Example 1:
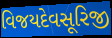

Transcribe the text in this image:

વિજયદેવસૂરિજી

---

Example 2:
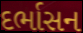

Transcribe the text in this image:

દર્ભાસન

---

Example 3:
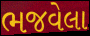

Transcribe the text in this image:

ભજવેલા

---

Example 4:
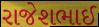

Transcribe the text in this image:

રાજેશભાઈ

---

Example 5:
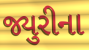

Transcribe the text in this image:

જ્યુરીના